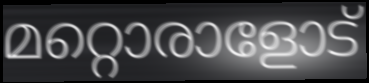
മറ്റൊരാളോട്